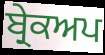
ਬ੍ਰੇਕਅਪ